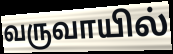
வருவாயில்